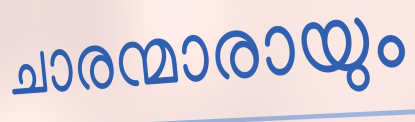
ചാരന്മാരായും